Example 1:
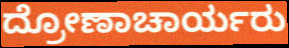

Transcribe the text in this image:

ದ್ರೋಣಾಚಾರ್ಯರು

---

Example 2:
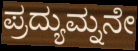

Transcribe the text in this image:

ಪ್ರದ್ಯುಮ್ನನೇ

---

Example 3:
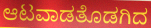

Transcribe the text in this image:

ಆಟವಾಡತೊಡಗಿದ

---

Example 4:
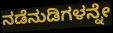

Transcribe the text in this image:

ನಡೆನುಡಿಗಳನ್ನೇ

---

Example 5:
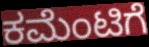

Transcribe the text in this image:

ಕಮೆಂಟಿಗೆ